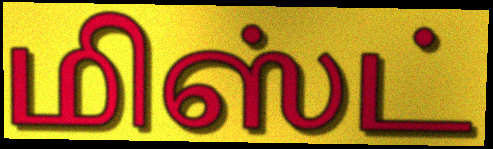
மிஸ்ட்